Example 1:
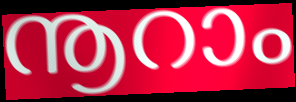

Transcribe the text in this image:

നൂറാം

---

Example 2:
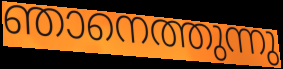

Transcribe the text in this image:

ഞാനെത്തുന്നു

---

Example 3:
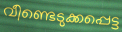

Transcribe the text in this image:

വീണ്ടെടുക്കപ്പെട്ട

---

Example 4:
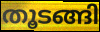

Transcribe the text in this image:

തൂടങ്ങി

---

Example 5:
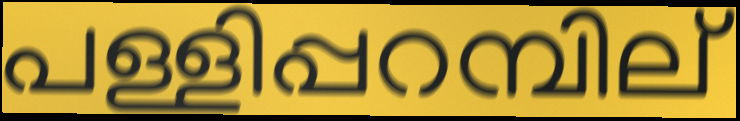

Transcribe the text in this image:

പള്ളിപ്പറമ്പില്